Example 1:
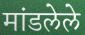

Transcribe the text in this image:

मांडलेले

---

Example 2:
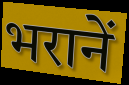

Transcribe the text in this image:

भरानें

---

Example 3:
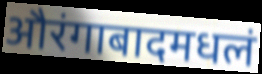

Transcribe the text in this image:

औरंगाबादमधलं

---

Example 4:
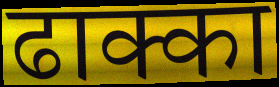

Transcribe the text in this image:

ढाक्का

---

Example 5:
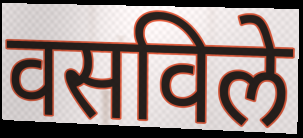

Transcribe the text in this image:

वसविले